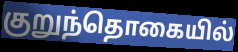
குறுந்தொகையில்